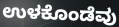
ಉಳಕೊಂಡೆವು